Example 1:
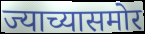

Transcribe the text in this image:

ज्याच्यासमोर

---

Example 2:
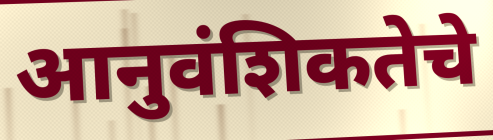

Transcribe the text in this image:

आनुवंशिकतेचे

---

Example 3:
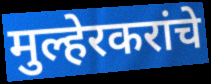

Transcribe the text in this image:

मुल्हेरकरांचे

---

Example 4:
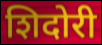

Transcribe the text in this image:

शिदोरी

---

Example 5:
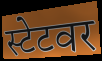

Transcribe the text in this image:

स्टेटवर